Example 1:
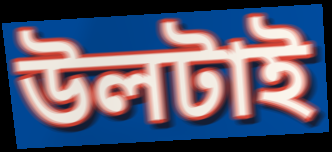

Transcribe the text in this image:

উলটাই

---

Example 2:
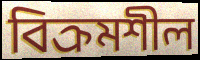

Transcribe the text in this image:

বিক্ৰমশীল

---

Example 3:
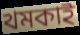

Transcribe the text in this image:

থমকাই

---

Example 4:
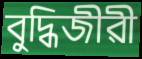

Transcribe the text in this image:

বুদ্ধিজীৱী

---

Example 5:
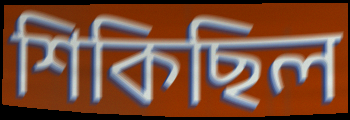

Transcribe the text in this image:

শিকিছিল